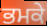
ਭਮਕੇ